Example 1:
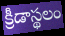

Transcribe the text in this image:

క్రీడాస్థలం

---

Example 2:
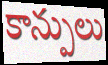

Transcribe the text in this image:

కాన్పులు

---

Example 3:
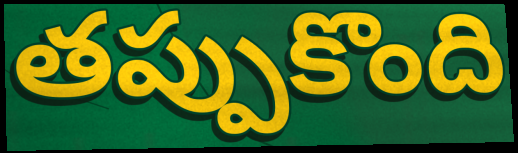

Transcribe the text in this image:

తప్పుకొంది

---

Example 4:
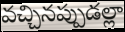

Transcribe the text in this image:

వచ్చినప్పుడల్లా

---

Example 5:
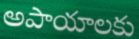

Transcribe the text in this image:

అపాయాలకు